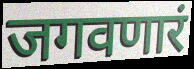
जगवणारं